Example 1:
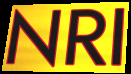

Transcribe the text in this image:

NRI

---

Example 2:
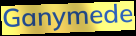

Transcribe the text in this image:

Ganymede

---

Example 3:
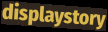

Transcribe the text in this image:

displaystory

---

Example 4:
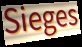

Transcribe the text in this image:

Sieges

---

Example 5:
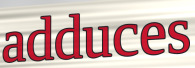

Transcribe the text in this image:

adduces